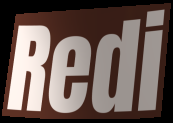
Redi